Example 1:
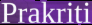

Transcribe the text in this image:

Prakriti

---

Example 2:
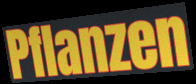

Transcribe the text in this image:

Pflanzen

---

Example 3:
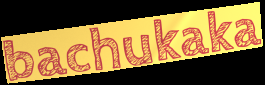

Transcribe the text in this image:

bachukaka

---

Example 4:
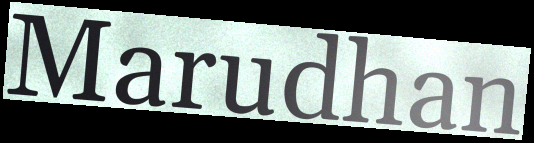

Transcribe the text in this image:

Marudhan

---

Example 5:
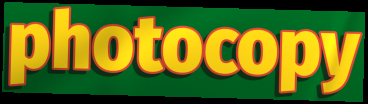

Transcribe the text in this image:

photocopy